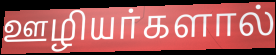
ஊழியர்களால்